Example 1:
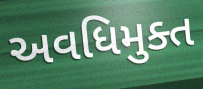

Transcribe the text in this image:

અવધિમુક્ત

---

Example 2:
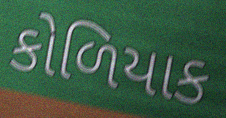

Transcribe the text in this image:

કોળિયાક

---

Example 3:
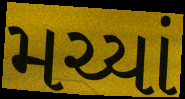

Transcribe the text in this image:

મચ્યાં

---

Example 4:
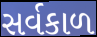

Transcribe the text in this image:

સર્વકાળ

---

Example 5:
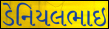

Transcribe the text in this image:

ડેનિયલભાઇ